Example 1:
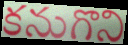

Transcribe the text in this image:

కనుగొని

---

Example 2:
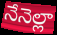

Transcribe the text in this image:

నేనెల్లా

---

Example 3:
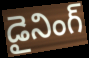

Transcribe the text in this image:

డైనింగ్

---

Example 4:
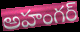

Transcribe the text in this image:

అహంగర్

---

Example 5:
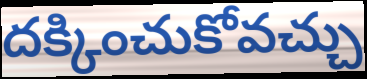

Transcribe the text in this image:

దక్కించుకోవచ్చు